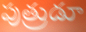
పుత్రుడూ